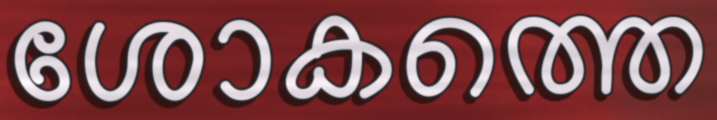
ശോകത്തെ